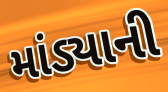
માંડ્યાની